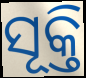
ସୂକ୍ତି